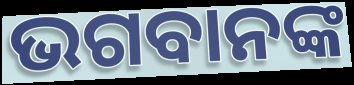
ଭଗବାନଙ୍କ